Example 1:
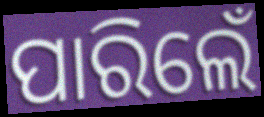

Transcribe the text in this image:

ପାରିଲେଁ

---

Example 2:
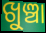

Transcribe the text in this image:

ଖୁଞ୍ଚା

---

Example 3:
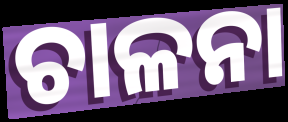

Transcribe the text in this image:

ଚାଳନା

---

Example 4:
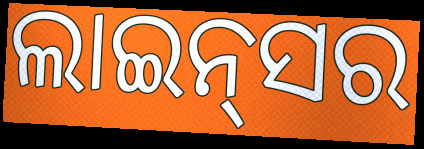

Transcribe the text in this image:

ଲାଇନ୍‌ସର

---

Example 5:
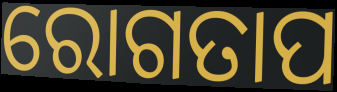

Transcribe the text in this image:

ରୋଗତାପ